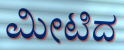
ಮೀಟಿದ